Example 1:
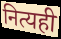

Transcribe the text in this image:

नित्यही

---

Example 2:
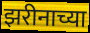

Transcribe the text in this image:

झरीनाच्या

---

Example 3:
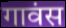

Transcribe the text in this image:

गावंस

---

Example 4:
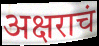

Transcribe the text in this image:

अक्षराचं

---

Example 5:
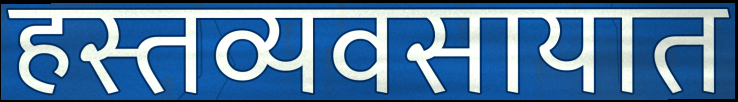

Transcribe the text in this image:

हस्तव्यवसायात